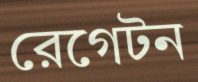
রেগেটন